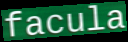
facula